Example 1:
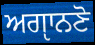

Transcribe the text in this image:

ਅਗੵਾਨਣੋ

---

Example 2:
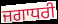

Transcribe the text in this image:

ਜਗਾਧਰੀ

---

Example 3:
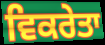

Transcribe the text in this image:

ਵਿਕਰੇਤਾ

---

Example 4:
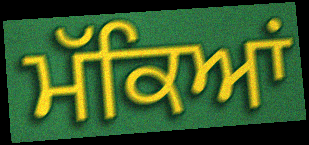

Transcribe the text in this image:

ਮੱਕਿਆਂ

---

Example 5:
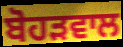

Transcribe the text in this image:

ਬੋਹੜਵਾਲ